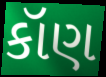
કૉણ